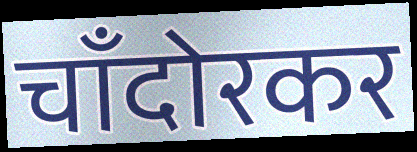
चाँदोरकर